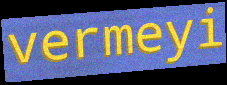
vermeyi